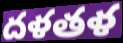
దళతళ